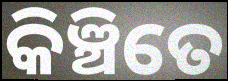
କିଞ୍ଚିତେ